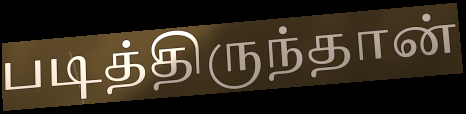
படித்திருந்தான்